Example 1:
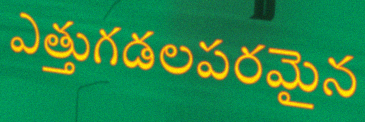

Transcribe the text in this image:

ఎత్తుగడలపరమైన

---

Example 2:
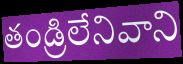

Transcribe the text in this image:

తండ్రిలేనివాని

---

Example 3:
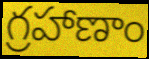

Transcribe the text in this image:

గ్రహాణాం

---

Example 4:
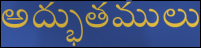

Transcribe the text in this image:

అద్భుతములు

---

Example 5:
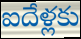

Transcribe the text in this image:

ఐదేళ్లకు